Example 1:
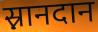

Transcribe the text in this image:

स्नानदान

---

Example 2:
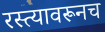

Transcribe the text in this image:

रस्त्यावरूनच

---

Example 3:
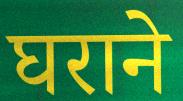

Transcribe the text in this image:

घराने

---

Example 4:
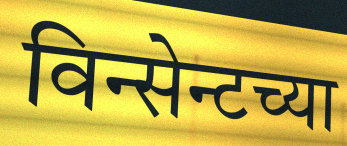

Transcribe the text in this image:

विन्सेन्टच्या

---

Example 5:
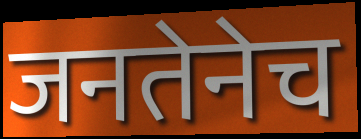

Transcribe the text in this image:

जनतेनेच